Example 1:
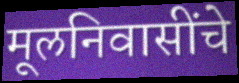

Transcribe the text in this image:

मूलनिवासींचे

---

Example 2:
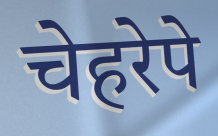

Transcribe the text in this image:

चेहरेपे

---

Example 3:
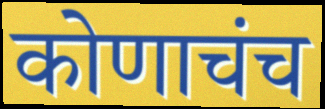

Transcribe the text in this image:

कोणाचंच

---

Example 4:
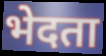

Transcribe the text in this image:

भेदता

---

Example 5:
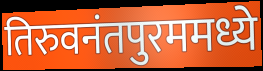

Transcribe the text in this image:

तिरुवनंतपुरममध्ये